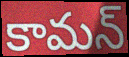
కామన్